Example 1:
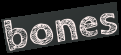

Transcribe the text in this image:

bones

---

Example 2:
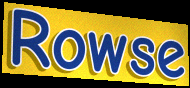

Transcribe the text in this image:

Rowse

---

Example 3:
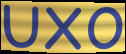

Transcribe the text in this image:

UXO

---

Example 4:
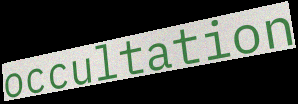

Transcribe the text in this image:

occultation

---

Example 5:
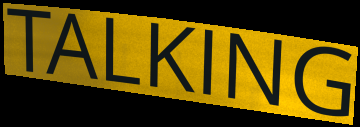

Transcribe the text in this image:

TALKING